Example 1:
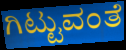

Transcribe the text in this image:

ಗಿಟ್ಟುವಂತೆ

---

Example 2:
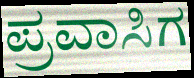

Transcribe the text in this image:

ಪ್ರವಾಸಿಗ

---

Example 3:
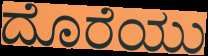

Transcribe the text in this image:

ದೊರೆಯು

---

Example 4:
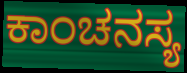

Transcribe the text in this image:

ಕಾಂಚನಸ್ಯ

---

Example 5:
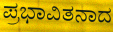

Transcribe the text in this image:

ಪ್ರಭಾವಿತನಾದ